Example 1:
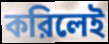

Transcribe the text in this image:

করিলেই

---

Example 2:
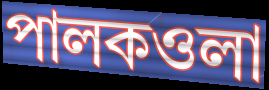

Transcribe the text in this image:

পালকওলা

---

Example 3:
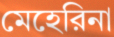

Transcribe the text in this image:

মেহেরিনা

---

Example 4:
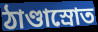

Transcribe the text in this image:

ঠাণ্ডাস্রোত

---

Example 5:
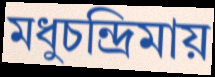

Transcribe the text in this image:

মধুচন্দ্রিমায়